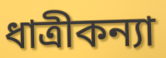
ধাত্রীকন্যা